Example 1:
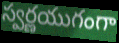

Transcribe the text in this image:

స్వర్ణయుగంగా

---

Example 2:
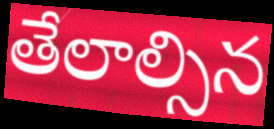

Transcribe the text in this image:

తేలాల్సిన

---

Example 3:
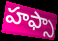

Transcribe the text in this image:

హఫ్సా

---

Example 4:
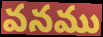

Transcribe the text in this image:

వనము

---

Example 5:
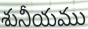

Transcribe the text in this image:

శునీయము